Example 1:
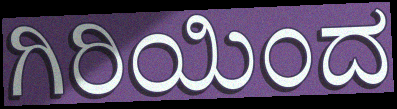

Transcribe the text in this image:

ಗಿರಿಯಿಂದ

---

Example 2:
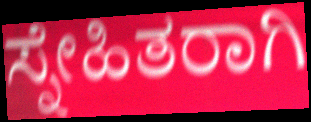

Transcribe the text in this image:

ಸ್ನೇಹಿತರಾಗಿ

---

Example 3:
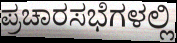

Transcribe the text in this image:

ಪ್ರಚಾರಸಭೆಗಳಲ್ಲಿ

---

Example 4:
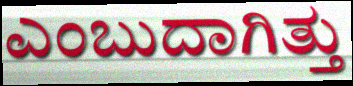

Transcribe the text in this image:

ಎಂಬುದಾಗಿತ್ತು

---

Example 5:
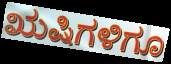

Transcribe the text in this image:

ಋಷಿಗಳಿಗೂ